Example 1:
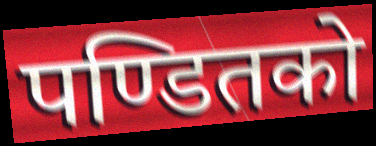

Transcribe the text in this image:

पण्डितको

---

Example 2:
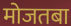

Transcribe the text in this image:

मोजतबा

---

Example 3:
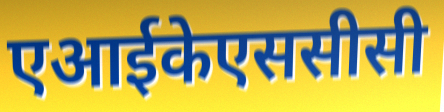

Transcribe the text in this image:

एआईकेएससीसी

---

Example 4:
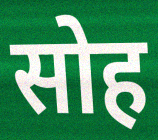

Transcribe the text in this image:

सोह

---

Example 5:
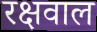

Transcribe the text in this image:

रक्षवाल